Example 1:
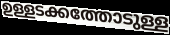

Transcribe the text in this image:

ഉള്ളടക്കത്തോടുള്ള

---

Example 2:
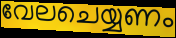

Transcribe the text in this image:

വേലചെയ്യണം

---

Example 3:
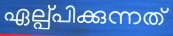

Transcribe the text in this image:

ഏല്പ്പിക്കുന്നത്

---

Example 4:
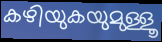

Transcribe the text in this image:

കഴിയുകയുമുള്ളൂ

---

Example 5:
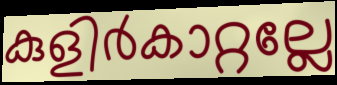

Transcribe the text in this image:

കുളിർകാറ്റല്ലേ